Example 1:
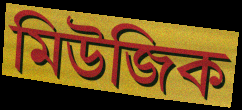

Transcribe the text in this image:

মিউজিক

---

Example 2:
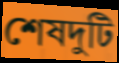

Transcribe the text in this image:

শেষদুটি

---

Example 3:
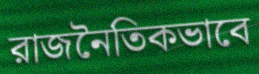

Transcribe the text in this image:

রাজনৈতিকভাবে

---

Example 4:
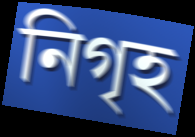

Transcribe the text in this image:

নিগৃহ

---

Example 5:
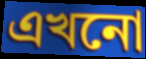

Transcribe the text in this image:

এখনো